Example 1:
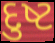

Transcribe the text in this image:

દુષ્ટ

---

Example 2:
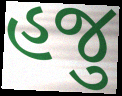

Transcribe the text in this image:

હજુ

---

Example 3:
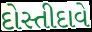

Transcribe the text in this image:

દોસ્તીદાવે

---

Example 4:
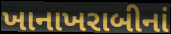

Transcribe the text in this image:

ખાનાખરાબીનાં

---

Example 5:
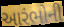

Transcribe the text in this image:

આરંભોની